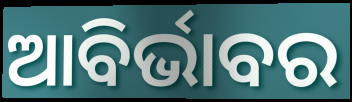
ଆବିର୍ଭାବର